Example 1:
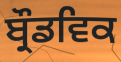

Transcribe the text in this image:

ਬ੍ਰੌਡਵਿਕ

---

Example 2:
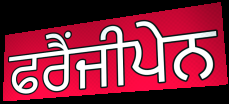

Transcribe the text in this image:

ਫਰੈਂਜੀਪੇਨ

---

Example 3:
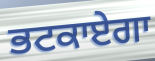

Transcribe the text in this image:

ਭਟਕਾਏਗਾ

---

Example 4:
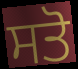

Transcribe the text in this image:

ਸਤੋ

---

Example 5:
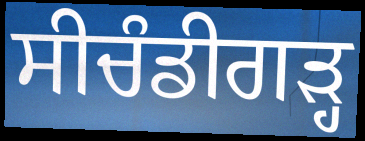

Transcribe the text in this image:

ਸੀਚੰਡੀਗੜ੍ਹ